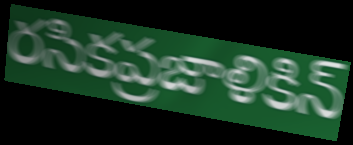
రసికప్రజాళికిన్